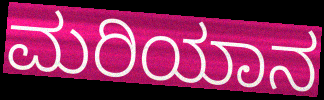
ಮರಿಯಾನ